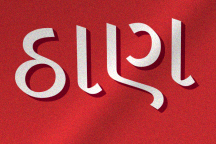
ઠાણ